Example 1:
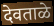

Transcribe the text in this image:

देवताळे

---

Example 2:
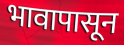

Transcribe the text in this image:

भावापासून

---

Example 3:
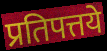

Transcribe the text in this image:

प्रतिपत्तये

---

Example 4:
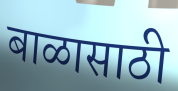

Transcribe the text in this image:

बाळासाठी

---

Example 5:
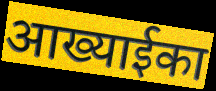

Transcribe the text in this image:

आख्याईका